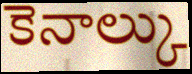
కెనాల్కు